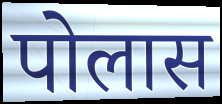
पोलास